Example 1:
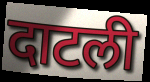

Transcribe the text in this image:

दाटली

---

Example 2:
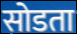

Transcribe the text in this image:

सोडता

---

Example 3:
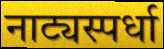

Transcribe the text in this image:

नाट्यस्पर्धा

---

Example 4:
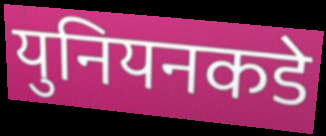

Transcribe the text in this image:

युनियनकडे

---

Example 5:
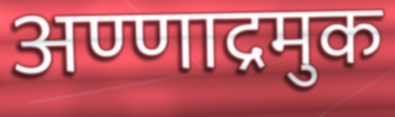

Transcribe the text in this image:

अण्णाद्रमुक